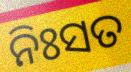
ନିଃସତ